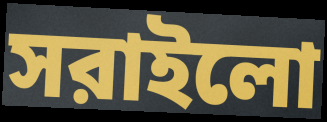
সরাইলো